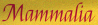
Mammalia